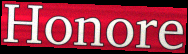
Honore